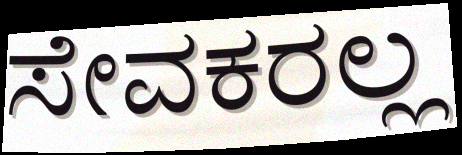
ಸೇವಕರಲ್ಲ